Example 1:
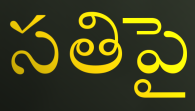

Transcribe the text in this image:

సతిపై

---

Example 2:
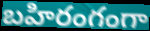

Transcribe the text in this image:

బహిరంగంగా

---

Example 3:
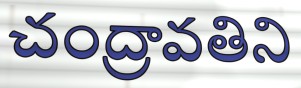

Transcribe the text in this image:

చంద్రావతిని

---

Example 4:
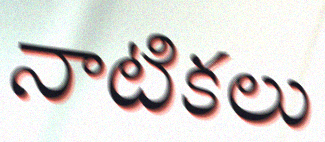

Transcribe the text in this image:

నాటికలు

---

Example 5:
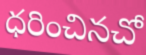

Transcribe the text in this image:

ధరించినచో